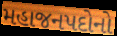
મહાજનપદોનો